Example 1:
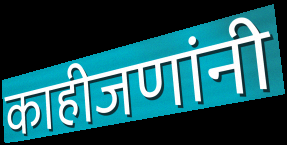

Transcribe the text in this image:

काहीजणांनी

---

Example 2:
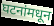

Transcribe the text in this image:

घटनांमधून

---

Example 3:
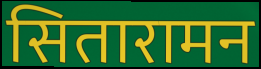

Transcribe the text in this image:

सितारामन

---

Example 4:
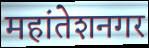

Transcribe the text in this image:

महांतेशनगर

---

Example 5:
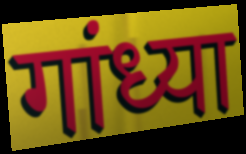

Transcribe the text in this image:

गांध्या